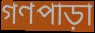
গণপাড়া